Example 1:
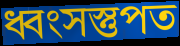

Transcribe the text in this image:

ধ্বংসস্তুপত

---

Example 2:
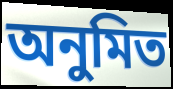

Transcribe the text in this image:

অনুমিত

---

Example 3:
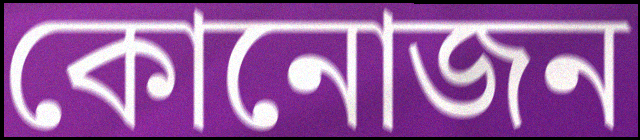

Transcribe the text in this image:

কোনোজন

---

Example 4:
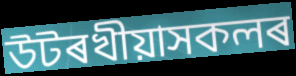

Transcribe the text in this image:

উটৰখীয়াসকলৰ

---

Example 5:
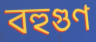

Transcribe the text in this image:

বহুগুণ